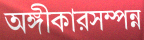
অঙ্গীকারসম্পন্ন